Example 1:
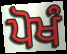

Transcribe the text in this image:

ਪੋਖੰ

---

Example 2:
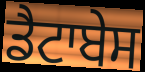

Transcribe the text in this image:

ਡੈਟਾਬੇਸ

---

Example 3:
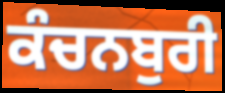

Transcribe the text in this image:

ਕੰਚਨਬੁਰੀ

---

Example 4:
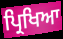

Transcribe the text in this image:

ਪ੍ਰਿਖਿਆ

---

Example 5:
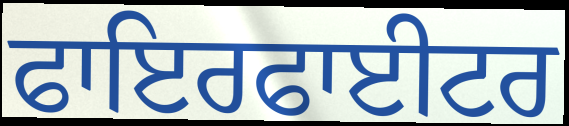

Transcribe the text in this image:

ਫਾਇਰਫਾਈਟਰ